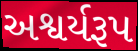
અશ્વર્યરૂપ